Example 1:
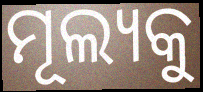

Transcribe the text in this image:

ମୂଲ୍ୟକୁ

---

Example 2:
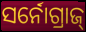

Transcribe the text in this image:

ସର୍ନୋଗ୍ରାଜ୍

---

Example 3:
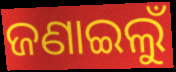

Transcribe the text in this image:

ଜଣାଇଲୁଁ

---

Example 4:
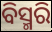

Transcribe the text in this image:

ବିସ୍ମରି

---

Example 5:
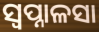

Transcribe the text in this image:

ସ୍ୱପ୍ନାଳସା